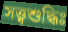
সত্ত্বশুদ্ধিঃ